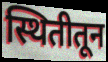
स्थितीतून